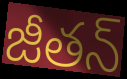
జీతన్